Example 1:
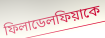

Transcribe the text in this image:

ফিলাডেলফিয়াকে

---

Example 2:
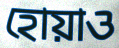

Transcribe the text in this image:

হোয়াও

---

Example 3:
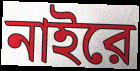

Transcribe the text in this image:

নাইরে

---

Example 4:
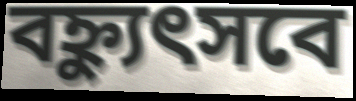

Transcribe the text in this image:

বহ্ন্যুৎসবে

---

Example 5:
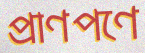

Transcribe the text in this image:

প্রাণপণে